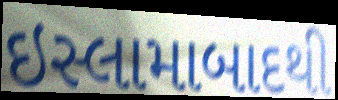
ઇસ્લામાબાદથી